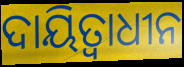
ଦାୟିତ୍ଵାଧୀନ